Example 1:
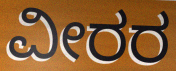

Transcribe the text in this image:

ವೀರರ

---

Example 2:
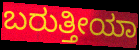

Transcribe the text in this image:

ಬರುತ್ತೀಯಾ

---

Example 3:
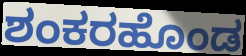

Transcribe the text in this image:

ಶಂಕರಹೊಂಡ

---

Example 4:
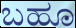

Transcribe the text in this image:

ಬಹೂ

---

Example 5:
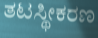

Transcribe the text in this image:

ತಟಸ್ಥೀಕರಣ